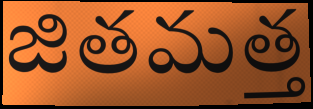
జితమత్త